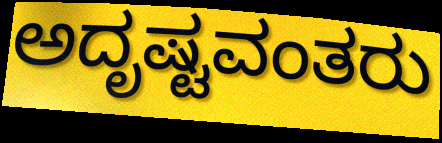
ಅದೃಷ್ಟವಂತರು